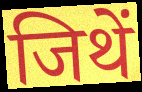
जिथें